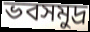
ভবসমুদ্র